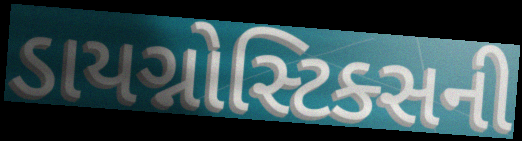
ડાયગ્નોસ્ટિક્સની